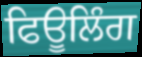
ਫਿਊਲਿੰਗ